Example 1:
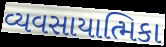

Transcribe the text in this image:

વ્યવસાયાત્મિકા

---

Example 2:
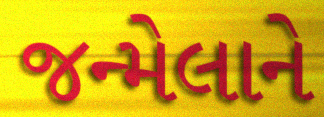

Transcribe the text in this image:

જન્મેલાને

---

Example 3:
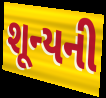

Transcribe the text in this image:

શૂન્યની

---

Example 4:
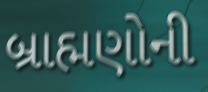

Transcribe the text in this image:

બ્રાહ્મણોની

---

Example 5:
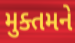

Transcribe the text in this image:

મુક્તમને